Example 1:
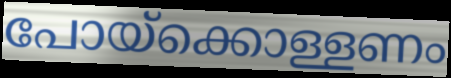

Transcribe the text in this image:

പോയ്ക്കൊള്ളണം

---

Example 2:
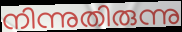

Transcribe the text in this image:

നിന്നുതിരുന്നു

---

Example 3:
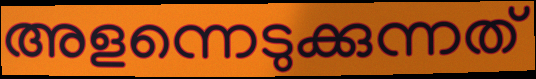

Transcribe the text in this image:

അളന്നെടുക്കുന്നത്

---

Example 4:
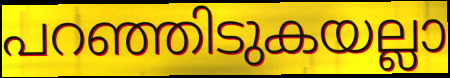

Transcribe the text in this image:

പറഞ്ഞിടുകയല്ലാ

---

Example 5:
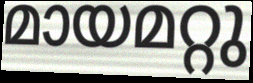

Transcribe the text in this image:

മായമറ്റു